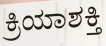
ಕ್ರಿಯಾಶಕ್ತಿ